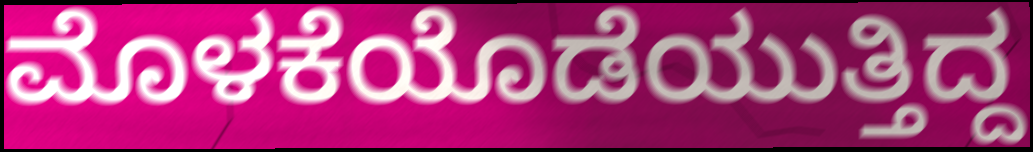
ಮೊಳಕೆಯೊಡೆಯುತ್ತಿದ್ದ